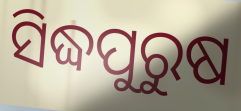
ସିଦ୍ଧପୁରୁଷ